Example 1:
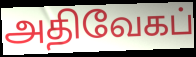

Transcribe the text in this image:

அதிவேகப்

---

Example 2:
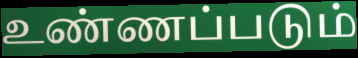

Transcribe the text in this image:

உண்ணப்படும்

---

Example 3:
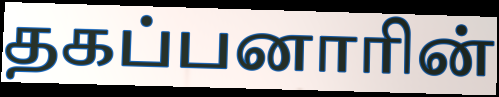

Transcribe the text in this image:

தகப்பனாரின்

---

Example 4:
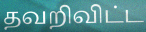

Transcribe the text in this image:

தவறிவிட்ட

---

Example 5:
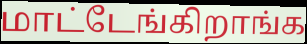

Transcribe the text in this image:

மாட்டேங்கிறாங்க